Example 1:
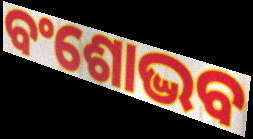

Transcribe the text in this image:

ବଂଶୋଦ୍ଭବ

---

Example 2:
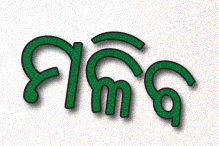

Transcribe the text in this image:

ମଳିବ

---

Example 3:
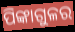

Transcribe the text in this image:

ପିଙ୍କାଗୁଳର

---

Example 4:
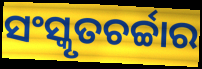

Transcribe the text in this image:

ସଂସ୍କୃତଚର୍ଚ୍ଚାର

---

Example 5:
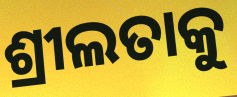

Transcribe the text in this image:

ଶ୍ରୀଲତାକୁ